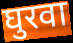
घुरवा